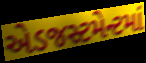
એડજસ્ટમેન્ટમાં